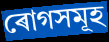
ৰোগসমূহ